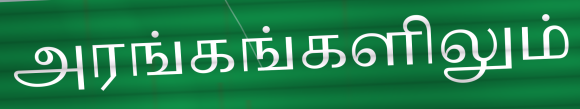
அரங்கங்களிலும்